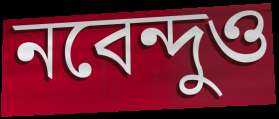
নবেন্দুও